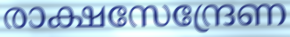
രാക്ഷസേന്ദ്രേണ